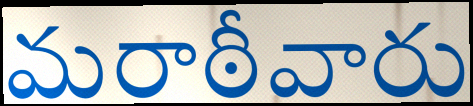
మరాఠీవారు